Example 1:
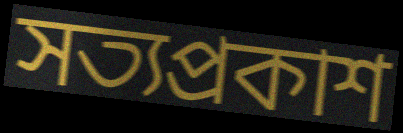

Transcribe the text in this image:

সত্যপ্ৰকাশ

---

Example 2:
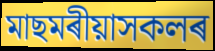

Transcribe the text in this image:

মাছমৰীয়াসকলৰ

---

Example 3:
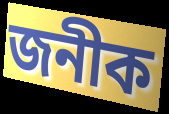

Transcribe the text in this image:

জনীক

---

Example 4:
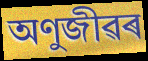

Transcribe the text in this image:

অণুজীৱৰ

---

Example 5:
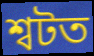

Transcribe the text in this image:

শ্বটত